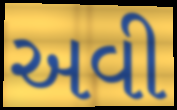
અવી